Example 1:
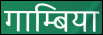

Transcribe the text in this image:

गाम्बिया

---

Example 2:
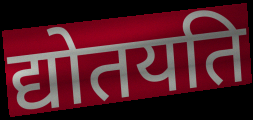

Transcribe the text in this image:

द्योतयति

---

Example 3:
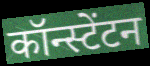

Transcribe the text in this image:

कॉन्स्टेंटन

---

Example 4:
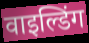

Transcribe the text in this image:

वाइल्डिंग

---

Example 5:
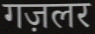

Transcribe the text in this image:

गज़लर